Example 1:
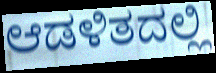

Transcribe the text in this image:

ಆಡಳಿತದಲ್ಲಿ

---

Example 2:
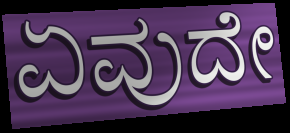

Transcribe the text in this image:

ಏವುದೇ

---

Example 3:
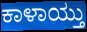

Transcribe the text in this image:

ಕಾಳಾಯ್ತು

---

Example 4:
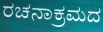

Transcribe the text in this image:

ರಚನಾಕ್ರಮದ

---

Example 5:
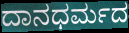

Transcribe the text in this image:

ದಾನಧರ್ಮದ